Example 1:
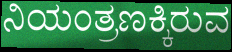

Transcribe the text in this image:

ನಿಯಂತ್ರಣಕ್ಕಿರುವ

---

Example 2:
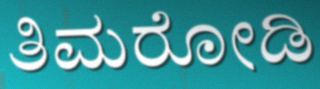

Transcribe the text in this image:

ತಿಮರೋಡಿ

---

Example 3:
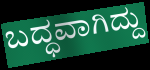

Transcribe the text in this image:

ಬದ್ಧವಾಗಿದ್ದು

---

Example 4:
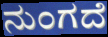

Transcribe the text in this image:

ನುಂಗದೆ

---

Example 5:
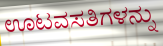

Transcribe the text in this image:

ಊಟವಸತಿಗಳನ್ನು